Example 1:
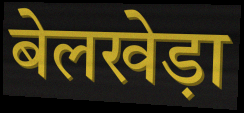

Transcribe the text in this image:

बेलखेड़ा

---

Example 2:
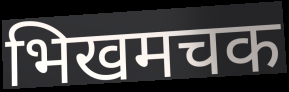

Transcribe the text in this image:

भिखमचक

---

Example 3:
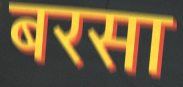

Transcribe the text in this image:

बरसा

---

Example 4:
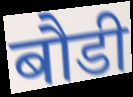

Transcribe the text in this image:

बौडी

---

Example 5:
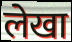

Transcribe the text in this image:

लेखा